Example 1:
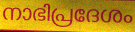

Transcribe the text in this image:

നാഭിപ്രദേശം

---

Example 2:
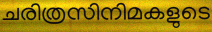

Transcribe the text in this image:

ചരിത്രസിനിമകളുടെ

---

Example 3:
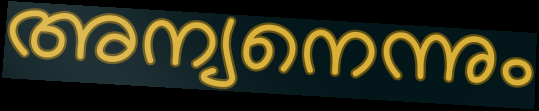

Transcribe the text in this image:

അന്യനെന്നും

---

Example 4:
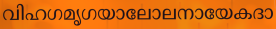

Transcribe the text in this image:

വിഹഗമൃഗയാലോലനായേകദാ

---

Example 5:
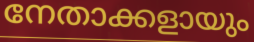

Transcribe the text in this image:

നേതാക്കളായും